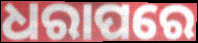
ଧରାପରେ